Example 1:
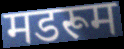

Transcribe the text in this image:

मडरूम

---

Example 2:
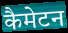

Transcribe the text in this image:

कैमेटन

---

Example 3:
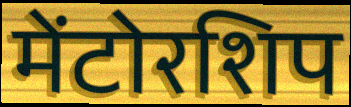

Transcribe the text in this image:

मेंटोरशिप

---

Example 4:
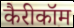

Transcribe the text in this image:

कैरीकॉम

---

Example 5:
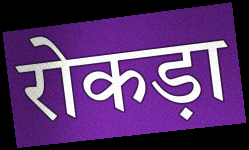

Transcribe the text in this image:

रोकड़ा